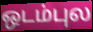
ஒடம்புல